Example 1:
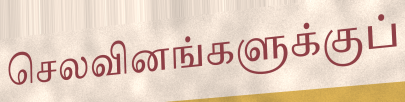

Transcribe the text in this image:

செலவினங்களுக்குப்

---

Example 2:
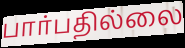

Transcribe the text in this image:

பார்பதில்லை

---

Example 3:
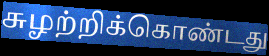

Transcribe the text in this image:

சுழற்றிக்கொண்டது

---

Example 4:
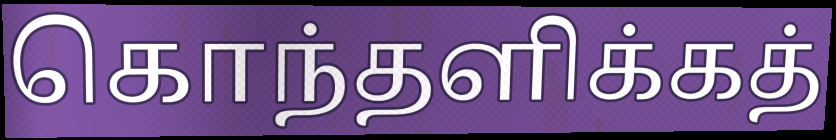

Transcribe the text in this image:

கொந்தளிக்கத்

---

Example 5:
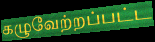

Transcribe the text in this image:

கழுவேற்றப்பட்ட